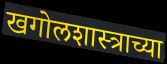
खगोलशास्त्राच्या